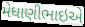
મેધાણીભાઇએ